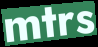
mtrs